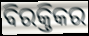
ବିରକ୍ତିକର